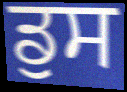
ਡੁਸ